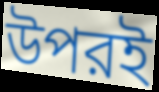
উপরই